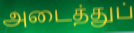
அடைத்துப்